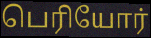
பெரியோர்